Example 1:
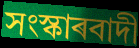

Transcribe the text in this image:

সংস্কাৰবাদী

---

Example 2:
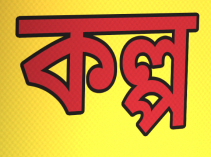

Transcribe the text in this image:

কল্প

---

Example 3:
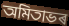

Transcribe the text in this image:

অমিতাভৰ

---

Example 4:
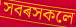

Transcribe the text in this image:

সবৰসকলে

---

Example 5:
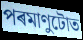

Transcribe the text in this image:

পৰমাণুটোত